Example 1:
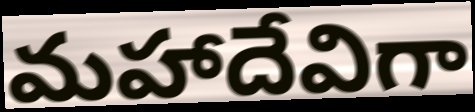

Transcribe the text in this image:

మహాదేవిగా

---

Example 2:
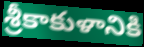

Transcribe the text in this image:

శ్రీకాకుళానికి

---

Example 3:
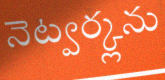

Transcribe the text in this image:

నెట్వర్క్లను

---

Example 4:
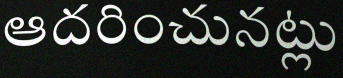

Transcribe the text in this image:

ఆదరించునట్లు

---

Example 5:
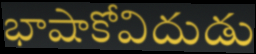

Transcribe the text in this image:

భాషాకోవిదుడు